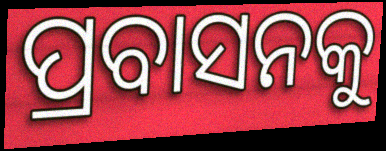
ପ୍ରବାସନକୁ